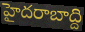
హైదరాబాద్ది